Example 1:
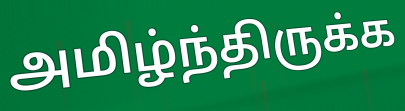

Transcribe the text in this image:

அமிழ்ந்திருக்க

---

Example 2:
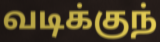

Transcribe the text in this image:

வடிக்குந்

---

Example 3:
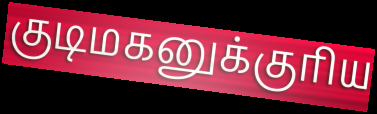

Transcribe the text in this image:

குடிமகனுக்குரிய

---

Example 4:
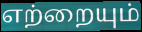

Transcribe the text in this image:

எற்றையும்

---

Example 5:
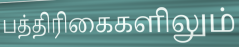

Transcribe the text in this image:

பத்திரிகைகளிலும்